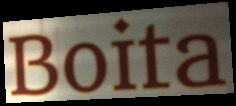
Boita